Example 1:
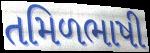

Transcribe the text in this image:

તમિળભાષી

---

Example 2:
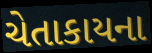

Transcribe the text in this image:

ચેતાકાયના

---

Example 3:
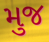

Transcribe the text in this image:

મુજ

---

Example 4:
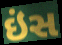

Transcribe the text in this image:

ઇંસ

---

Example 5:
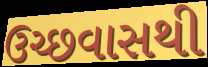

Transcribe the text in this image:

ઉચ્છવાસથી